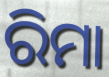
ରିମା